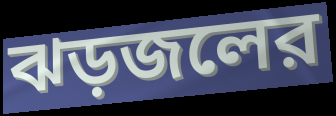
ঝড়জলের